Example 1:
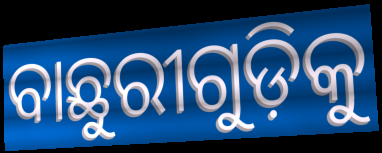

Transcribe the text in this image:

ବାଛୁରୀଗୁଡ଼ିକୁ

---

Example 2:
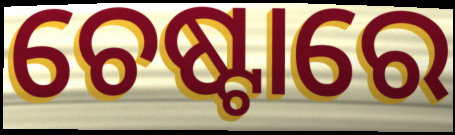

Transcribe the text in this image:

ଚେଷ୍ଟାରେ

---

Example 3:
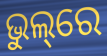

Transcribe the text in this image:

ଭୁଲ୍‌ରେ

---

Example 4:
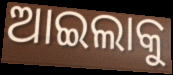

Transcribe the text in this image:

ଆଇଲାକୁ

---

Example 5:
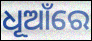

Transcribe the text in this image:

ଧୂଆଁରେ